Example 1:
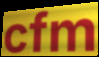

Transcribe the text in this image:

cfm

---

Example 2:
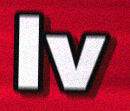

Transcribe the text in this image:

lv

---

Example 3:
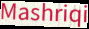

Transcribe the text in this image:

Mashriqi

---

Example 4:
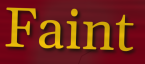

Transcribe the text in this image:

Faint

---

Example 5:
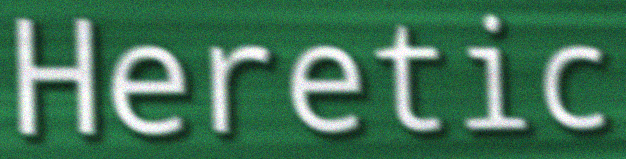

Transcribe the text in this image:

Heretic